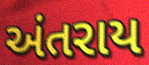
અંતરાય